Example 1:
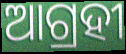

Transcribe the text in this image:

ଆଗ୍ରହୀ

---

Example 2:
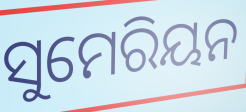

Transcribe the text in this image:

ସୁମେରିୟନ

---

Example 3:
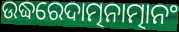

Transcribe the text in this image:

ଉଦ୍ଧରେଦାତ୍ମନାତ୍ମାନଂ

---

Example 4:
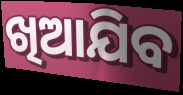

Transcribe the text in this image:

ଖିଆଯିବ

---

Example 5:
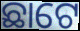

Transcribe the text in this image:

ଛାଟେ